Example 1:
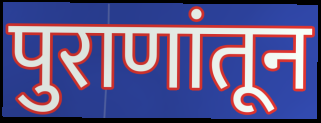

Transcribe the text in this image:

पुराणांतून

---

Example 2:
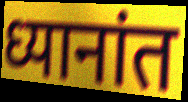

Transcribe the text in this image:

ध्यानांत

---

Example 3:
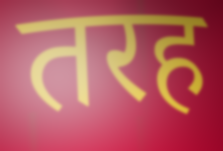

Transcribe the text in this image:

तरह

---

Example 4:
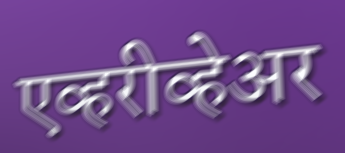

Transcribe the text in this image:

एव्हरीव्हेअर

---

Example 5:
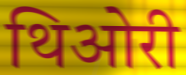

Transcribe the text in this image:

थिओरी